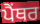
ਪੈੰਥਰ